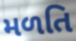
મળતિ